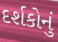
દર્શકોનું